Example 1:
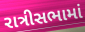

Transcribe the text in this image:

રાત્રીસભામાં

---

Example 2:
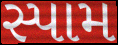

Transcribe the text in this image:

સ્પામ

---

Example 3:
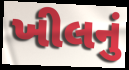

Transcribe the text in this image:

ખીલનું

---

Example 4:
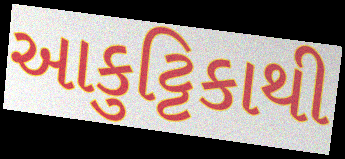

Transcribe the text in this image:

આકુટ્ટિકાથી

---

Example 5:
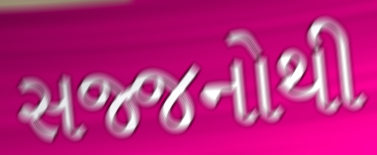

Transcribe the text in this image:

સજ્જનોથી